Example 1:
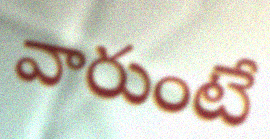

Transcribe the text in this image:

వారుంటే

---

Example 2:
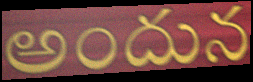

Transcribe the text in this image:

అందున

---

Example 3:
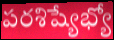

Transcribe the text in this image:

పరశిష్యేభ్యో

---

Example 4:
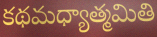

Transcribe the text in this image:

కథమధ్యాత్మమితి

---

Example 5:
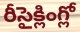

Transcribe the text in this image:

రీసైక్లింగ్లో